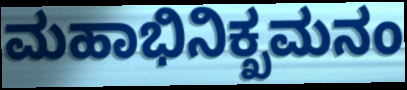
ಮಹಾಭಿನಿಕ್ಖಮನಂ